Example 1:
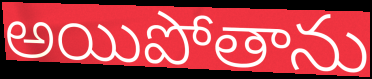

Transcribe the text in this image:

అయిపోతాను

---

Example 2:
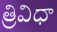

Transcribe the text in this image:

త్రివిధా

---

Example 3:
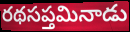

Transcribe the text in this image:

రథసప్తమినాడు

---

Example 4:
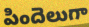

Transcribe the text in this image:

పిందెలుగా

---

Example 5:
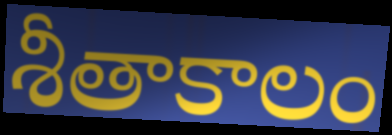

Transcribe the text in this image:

శీతాకాలం